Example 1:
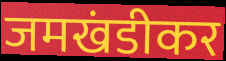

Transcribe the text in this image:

जमखंडीकर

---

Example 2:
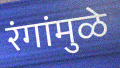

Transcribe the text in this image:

रंगांमुळे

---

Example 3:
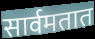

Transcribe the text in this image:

सार्वमतात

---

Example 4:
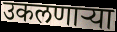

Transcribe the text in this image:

उकलणाऱ्या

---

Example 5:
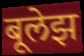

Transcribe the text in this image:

बूलेझ